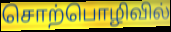
சொற்பொழிவில்